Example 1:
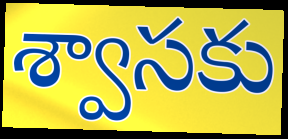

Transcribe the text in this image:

శ్వాసకు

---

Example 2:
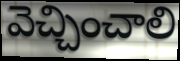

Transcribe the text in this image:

వెచ్చించాలి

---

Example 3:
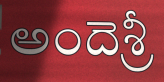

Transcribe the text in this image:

అందెశ్రీ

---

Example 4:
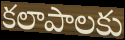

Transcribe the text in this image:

కలాపాలకు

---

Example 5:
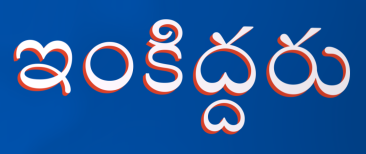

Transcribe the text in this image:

ఇంకిద్దరు